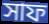
সাফ